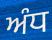
ਅੰਧ